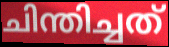
ചിന്തിച്ചത്